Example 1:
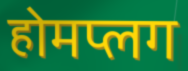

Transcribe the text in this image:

होमप्लग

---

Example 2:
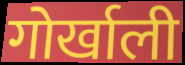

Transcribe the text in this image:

गोर्खाली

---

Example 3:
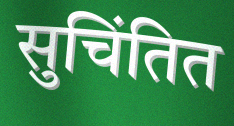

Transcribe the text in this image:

सुचिंतित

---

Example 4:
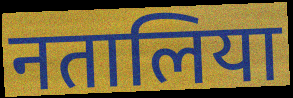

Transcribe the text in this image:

नतालिया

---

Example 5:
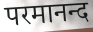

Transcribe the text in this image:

परमानन्द